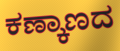
ಕಣ್ಕಾಣದ